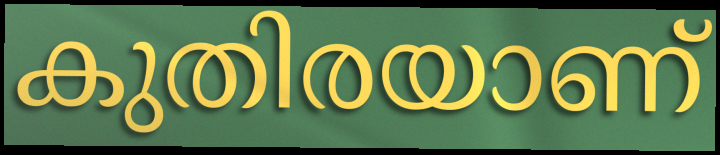
കുതിരയാണ്